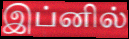
இப்னில்